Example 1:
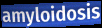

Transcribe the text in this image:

amyloidosis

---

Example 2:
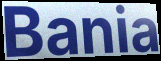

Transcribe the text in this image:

Bania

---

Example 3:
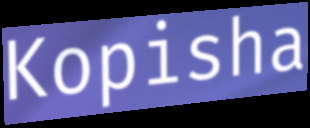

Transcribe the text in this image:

Kopisha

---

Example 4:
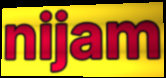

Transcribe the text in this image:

nijam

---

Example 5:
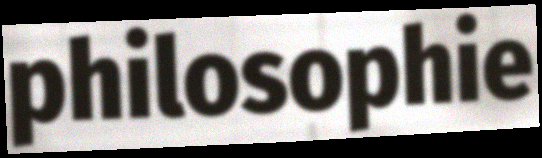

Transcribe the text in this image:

philosophie